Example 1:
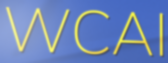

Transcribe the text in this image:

WCAI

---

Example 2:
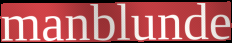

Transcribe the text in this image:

manblunde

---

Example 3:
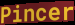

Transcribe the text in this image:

Pincer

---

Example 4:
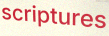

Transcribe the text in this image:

scriptures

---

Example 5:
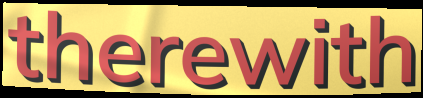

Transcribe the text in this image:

therewith